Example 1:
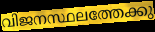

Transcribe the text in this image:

വിജനസ്ഥലത്തേക്കു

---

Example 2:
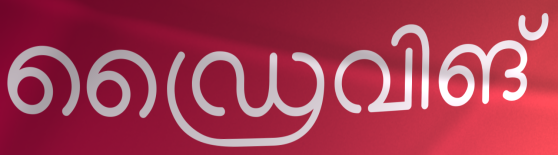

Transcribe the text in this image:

ഡ്രൈവിങ്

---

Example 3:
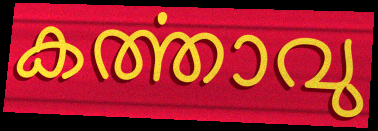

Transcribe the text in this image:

കൎത്താവു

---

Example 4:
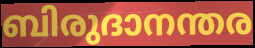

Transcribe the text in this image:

ബിരുദാനന്തര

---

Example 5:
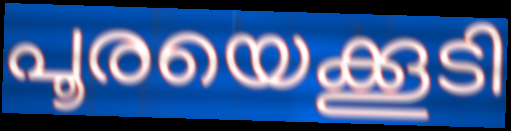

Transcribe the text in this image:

പൂരയെക്കൂടി